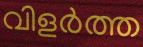
വിളർത്ത